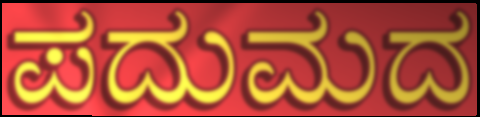
ಪದುಮದ